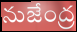
నుజేంద్ర